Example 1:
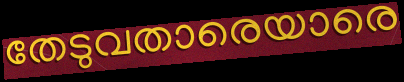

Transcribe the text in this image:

തേടുവതാരെയാരെ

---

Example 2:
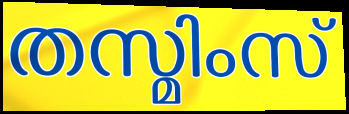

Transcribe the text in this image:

തസ്മിംസ്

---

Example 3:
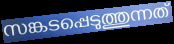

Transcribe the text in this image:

സങ്കടപ്പെടുത്തുന്നത്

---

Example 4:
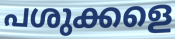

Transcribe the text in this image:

പശുക്കളെ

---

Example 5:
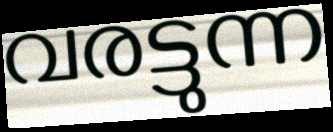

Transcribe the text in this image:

വരട്ടുന്ന